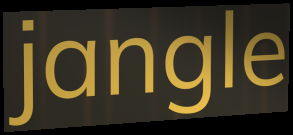
jangle